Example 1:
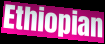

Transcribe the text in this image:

Ethiopian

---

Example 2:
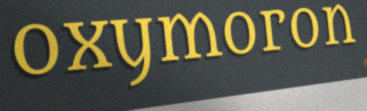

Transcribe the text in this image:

oxymoron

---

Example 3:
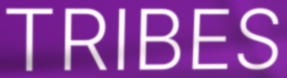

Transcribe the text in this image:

TRIBES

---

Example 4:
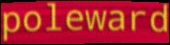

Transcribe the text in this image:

poleward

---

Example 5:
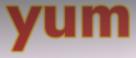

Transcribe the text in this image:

yum